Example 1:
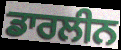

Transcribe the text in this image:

ਡਾਰਲੀਨ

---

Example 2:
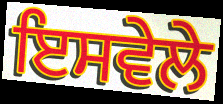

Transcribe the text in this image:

ਇਸਵੇਲੇ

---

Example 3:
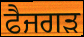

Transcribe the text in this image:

ਫੈਜਗੜ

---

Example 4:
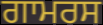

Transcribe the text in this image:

ਗਾਮਰਸ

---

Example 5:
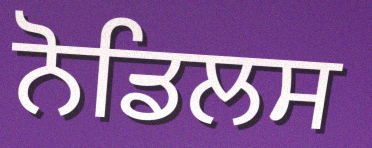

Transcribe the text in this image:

ਨੋਡਿਲਸ